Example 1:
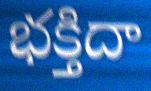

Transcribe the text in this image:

భక్తిదా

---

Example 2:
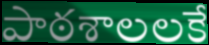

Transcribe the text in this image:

పాఠశాలలకే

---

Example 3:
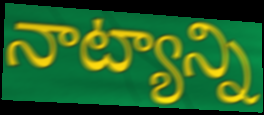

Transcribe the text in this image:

నాట్యాన్ని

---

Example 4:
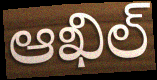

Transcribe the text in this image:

ఆఖిల్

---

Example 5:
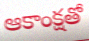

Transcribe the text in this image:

ఆకాంక్షతో